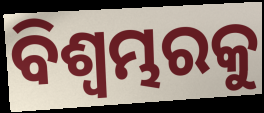
ବିଶ୍ୱମ୍ଭରକୁ